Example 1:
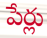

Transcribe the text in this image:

పేర్లు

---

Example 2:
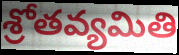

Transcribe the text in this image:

శ్రోతవ్యమితి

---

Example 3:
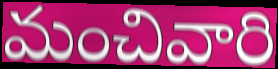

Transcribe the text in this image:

మంచివారి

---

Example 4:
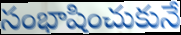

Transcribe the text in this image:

సంభాషించుకునే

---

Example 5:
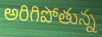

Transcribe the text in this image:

అరిగిపోతున్న